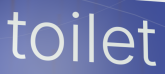
toilet